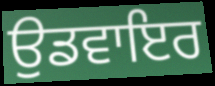
ਉਡਵਾਇਰ